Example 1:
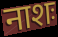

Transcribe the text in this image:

नाशः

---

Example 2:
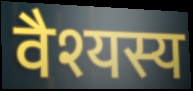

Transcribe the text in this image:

वैश्यस्य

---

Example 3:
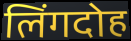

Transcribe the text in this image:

लिंगदोह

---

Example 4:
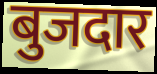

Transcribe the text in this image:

बुजदार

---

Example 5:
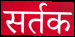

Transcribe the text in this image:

सर्तक